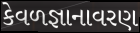
કેવળજ્ઞાનાવરણ